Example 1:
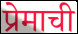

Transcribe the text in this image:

प्रेमाची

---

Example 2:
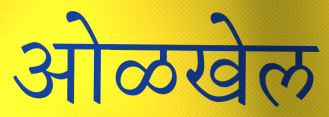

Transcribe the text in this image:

ओळखेल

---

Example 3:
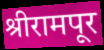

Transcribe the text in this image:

श्रीरामपूर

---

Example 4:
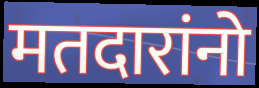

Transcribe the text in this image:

मतदारांनो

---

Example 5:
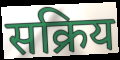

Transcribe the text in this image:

सक्रिय